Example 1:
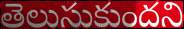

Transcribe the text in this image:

తెలుసుకుందని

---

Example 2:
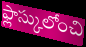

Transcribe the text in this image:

ఫ్లాస్కులోంచి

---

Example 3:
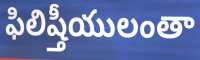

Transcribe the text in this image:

ఫిలిష్తీయులంతా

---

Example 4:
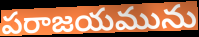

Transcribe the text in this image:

పరాజయమును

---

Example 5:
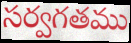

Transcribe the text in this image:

సర్వగతము